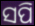
ସପି